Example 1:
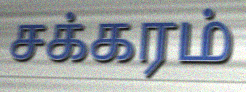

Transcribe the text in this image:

சக்கரம்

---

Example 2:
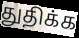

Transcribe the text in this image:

துதிக்க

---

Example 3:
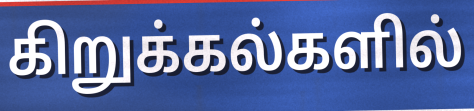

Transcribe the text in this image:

கிறுக்கல்களில்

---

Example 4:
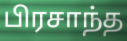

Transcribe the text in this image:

பிரசாந்த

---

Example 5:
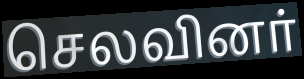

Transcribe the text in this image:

செலவினர்